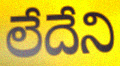
లేదేని